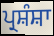
ਪ੍ਰਸ਼ੰਸ਼ਾ